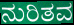
ನುರಿತವ